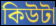
কিউটা